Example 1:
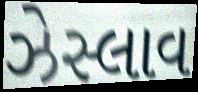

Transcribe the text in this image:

ઝેસ્લાવ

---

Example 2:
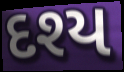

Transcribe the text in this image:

દશ્ય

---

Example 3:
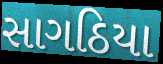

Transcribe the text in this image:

સાગઠિયા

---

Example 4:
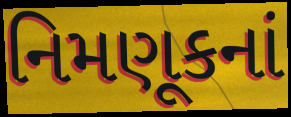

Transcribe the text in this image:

નિમણૂકનાં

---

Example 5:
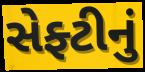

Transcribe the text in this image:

સેફ્ટીનું